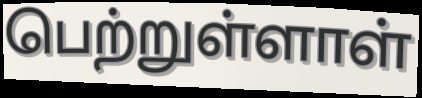
பெற்றுள்ளாள்